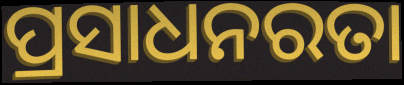
ପ୍ରସାଧନରତା